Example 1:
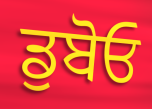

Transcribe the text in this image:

ਡੁਬੋਓ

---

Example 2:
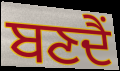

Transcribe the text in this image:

ਬਣਦੈਂ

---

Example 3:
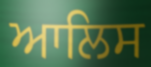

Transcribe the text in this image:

ਆਲਿਸ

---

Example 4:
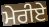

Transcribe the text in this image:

ਮੇਰੀਏ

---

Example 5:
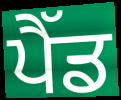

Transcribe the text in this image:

ਪੈੱਡ